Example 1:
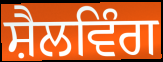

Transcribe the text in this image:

ਸ਼ੈਲਵਿੰਗ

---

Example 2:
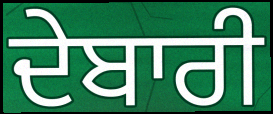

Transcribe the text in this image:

ਦੇਬਾਰੀ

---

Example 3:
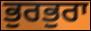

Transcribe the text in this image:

ਭੁਰਭੁਰਾ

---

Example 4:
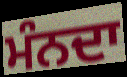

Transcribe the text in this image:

ਮੰਨਦਾ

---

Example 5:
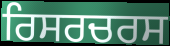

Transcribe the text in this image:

ਰਿਸਰਚਰਸ